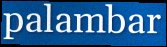
palambar